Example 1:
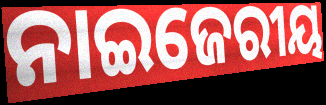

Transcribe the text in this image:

ନାଇଜେରୀୟ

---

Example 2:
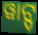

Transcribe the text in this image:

ୱାଟ୍ସ୍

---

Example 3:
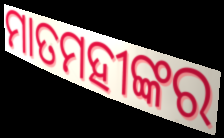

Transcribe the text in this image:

ମାତମହୀଙ୍କର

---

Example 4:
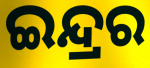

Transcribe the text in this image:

ଇନ୍ଦ୍ରର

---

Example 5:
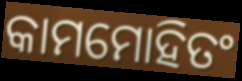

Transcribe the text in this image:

କାମମୋହିତଂ